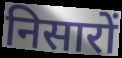
निसारों